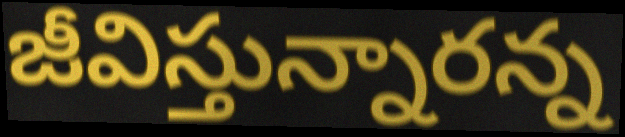
జీవిస్తున్నారన్న